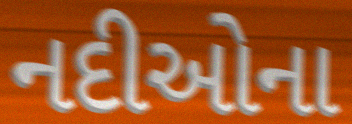
નદીઓના